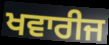
ਖਵਾਰੀਜ